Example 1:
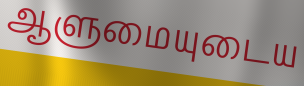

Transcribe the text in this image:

ஆளுமையுடைய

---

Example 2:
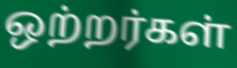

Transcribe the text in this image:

ஒற்றர்கள்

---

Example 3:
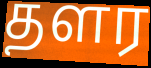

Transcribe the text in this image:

தளர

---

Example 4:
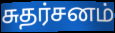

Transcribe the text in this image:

சுதர்சனம்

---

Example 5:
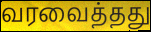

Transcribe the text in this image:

வரவைத்தது